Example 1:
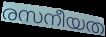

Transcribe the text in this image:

രസനീയത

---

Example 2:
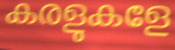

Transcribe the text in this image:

കരളുകളേ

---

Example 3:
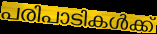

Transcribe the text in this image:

പരിപാടികൾക്ക്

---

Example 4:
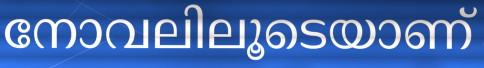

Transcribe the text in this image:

നോവലിലൂടെയാണ്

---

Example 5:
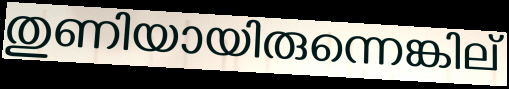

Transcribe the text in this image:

തുണിയായിരുന്നെങ്കില്